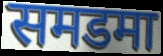
समडमा